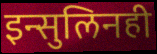
इन्सुलिनही